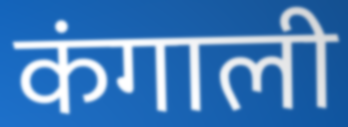
कंगाली